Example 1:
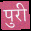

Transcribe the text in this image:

पुरी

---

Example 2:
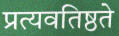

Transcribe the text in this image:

प्रत्यवतिष्ठते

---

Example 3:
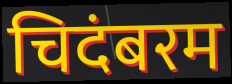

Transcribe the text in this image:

चिदंबरम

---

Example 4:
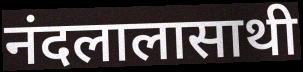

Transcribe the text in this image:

नंदलालासाथी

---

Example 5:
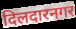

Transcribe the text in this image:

दिलदारनगर